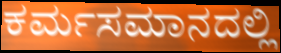
ಕರ್ಮಸಮಾನದಲ್ಲಿ